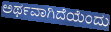
ಅರ್ಥವಾಗಿದೆಯೆಂದು